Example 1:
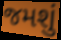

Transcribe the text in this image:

જમશું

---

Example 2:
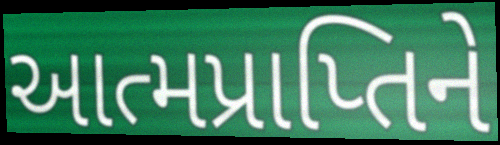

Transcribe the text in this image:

આત્મપ્રાપ્તિને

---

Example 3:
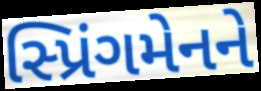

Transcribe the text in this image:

સ્પ્રિંગમેનને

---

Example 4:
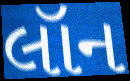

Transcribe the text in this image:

લૉન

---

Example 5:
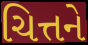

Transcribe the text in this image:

ચિત્તને